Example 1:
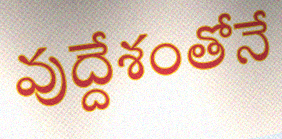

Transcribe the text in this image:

వుద్దేశంతోనే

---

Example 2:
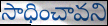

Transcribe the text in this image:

సాధించావని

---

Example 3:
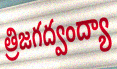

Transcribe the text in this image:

త్రిజగద్వంద్యా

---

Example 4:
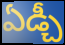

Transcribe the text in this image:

ఏడ్చీ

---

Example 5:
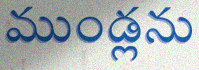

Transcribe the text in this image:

ముండ్లను